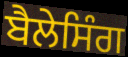
ਬੈਲੇਸਿੰਗ